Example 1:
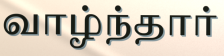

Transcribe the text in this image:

வாழ்ந்தார்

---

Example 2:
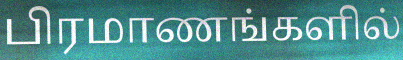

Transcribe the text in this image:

பிரமாணங்களில்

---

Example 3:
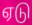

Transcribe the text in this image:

ஏடு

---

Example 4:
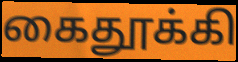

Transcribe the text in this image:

கைதூக்கி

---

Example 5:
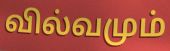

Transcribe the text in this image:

வில்வமும்